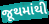
જૂથમાંથી